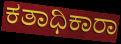
ಕತಾಧಿಕಾರಾ